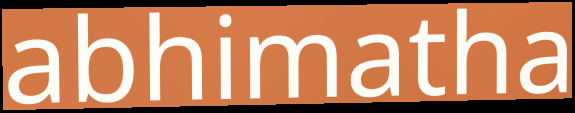
abhimatha